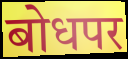
बोधपर